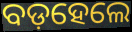
ବଡ଼ହେଲେ